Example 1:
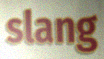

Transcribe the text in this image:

slang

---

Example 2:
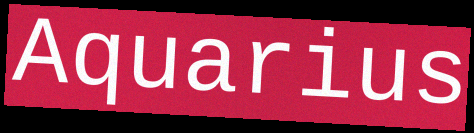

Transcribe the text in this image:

Aquarius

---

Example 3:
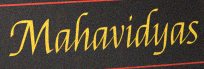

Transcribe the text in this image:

Mahavidyas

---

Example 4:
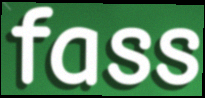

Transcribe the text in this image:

fass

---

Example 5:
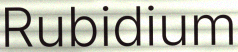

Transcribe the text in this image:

Rubidium